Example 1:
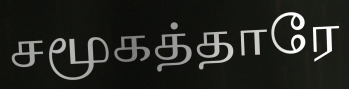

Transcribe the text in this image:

சமூகத்தாரே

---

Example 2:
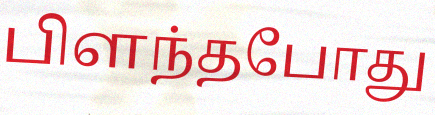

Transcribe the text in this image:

பிளந்தபோது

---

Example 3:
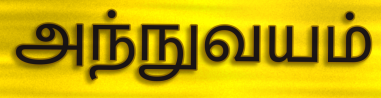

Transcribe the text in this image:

அந்நுவயம்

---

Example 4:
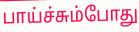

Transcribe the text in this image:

பாய்ச்சும்போது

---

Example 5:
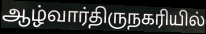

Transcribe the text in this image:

ஆழ்வார்திருநகரியில்